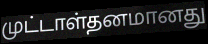
முட்டாள்தனமானது